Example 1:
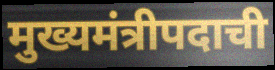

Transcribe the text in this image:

मुख्यमंत्रीपदाची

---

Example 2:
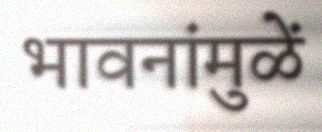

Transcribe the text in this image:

भावनांमुळें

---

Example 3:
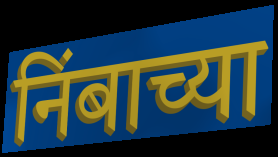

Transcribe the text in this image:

निंबाच्या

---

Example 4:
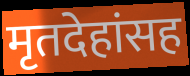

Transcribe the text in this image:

मृतदेहांसह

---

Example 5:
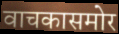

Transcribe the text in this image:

वाचकासमोर